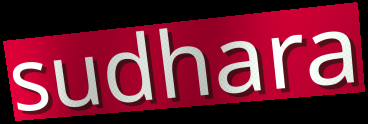
sudhara